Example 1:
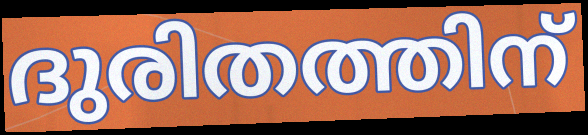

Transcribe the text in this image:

ദുരിതത്തിന്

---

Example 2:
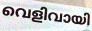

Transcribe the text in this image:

വെളിവായി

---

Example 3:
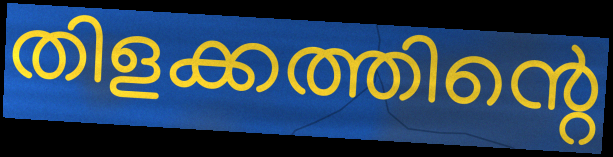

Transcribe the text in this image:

തിളക്കത്തിന്റെ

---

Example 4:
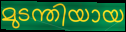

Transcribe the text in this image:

മുടന്തിയായ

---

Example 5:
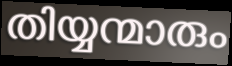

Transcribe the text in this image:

തിയ്യന്മാരും